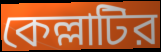
কেল্লাটির